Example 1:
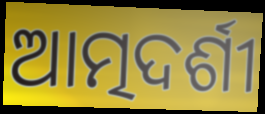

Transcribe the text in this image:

ଆତ୍ମଦର୍ଶୀ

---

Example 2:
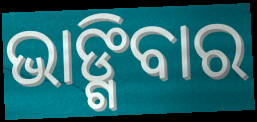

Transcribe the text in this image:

ଭାଙ୍ଗିବାର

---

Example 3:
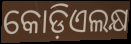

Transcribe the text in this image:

କୋଡ଼ିଏଲକ୍ଷ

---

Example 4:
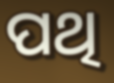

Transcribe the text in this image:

ପଥି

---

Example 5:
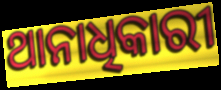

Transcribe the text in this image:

ଥାନାଧିକାରୀ